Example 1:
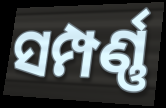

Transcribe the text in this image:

ସମ୍ପର୍ଣ୍ଣ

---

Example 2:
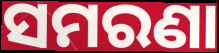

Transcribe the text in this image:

ସମରଣା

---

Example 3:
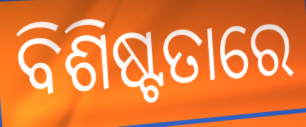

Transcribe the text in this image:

ବିଶିଷ୍ଟତାରେ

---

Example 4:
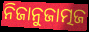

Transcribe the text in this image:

ନିଜାନୁଜାତ୍ମଜ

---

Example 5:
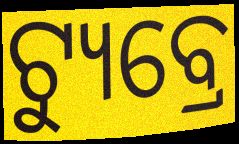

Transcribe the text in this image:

ଟ୍ୟୁବ୍ରେ